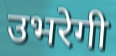
उभरेगी